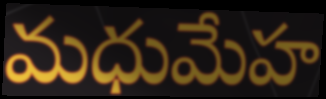
మధుమేహ